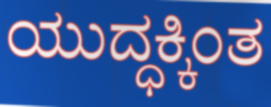
ಯುದ್ಧಕ್ಕಿಂತ